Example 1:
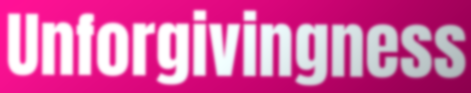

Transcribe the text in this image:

Unforgivingness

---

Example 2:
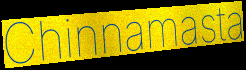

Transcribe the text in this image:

Chinnamasta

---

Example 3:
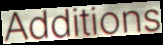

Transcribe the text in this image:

Additions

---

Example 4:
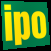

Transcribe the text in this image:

ipo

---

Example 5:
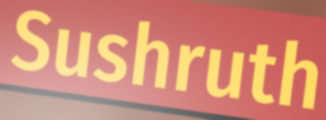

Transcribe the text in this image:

Sushruth